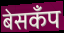
बेसकँप